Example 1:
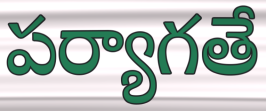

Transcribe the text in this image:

పర్యాగతే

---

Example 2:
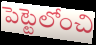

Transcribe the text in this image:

పెట్టెలోంచి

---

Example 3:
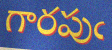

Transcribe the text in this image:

గారపుఁ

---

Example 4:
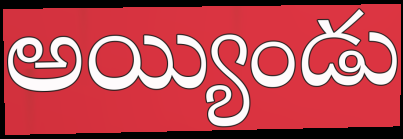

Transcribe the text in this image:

అయ్యిండు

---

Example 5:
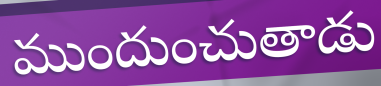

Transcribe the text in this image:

ముందుంచుతాడు